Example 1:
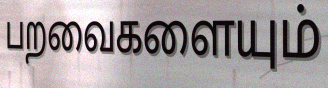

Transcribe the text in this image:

பறவைகளையும்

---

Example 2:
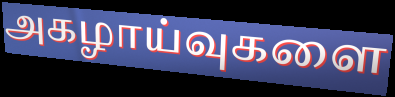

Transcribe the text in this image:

அகழாய்வுகளை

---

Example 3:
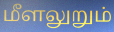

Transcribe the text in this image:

மீளலுறும்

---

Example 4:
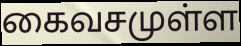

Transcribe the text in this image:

கைவசமுள்ள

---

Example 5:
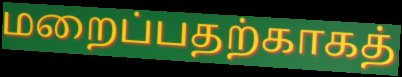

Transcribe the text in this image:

மறைப்பதற்காகத்